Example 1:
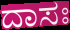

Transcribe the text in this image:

ದಾಸಃ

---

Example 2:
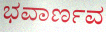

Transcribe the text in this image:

ಭವಾರ್ಣವ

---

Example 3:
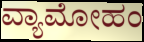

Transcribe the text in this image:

ವ್ಯಾಮೋಹಂ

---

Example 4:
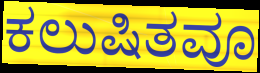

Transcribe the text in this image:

ಕಲುಷಿತವೂ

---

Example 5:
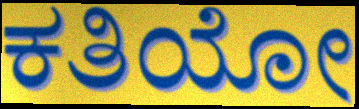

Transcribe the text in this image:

ಕತಿಯೋ